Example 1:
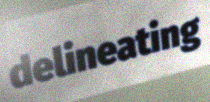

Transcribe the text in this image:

delineating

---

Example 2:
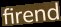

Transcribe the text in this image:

firend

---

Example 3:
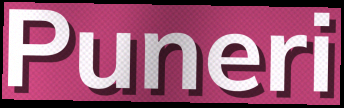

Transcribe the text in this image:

Puneri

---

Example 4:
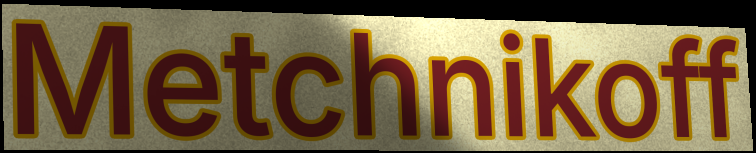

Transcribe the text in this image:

Metchnikoff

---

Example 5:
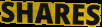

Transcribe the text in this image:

SHARES